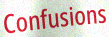
Confusions